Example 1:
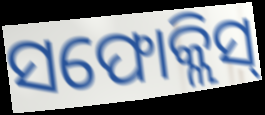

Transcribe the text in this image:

ସଫୋକ୍ଲିସ୍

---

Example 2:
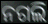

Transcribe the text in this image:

ନଗଲି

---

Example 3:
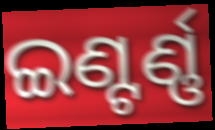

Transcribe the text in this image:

ଇଣ୍ଟର୍ଣ୍ଣ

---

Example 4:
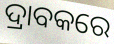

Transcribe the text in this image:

ଦ୍ରାବକରେ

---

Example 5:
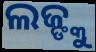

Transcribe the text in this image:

ଲଜ୍ଙ୍କୁ